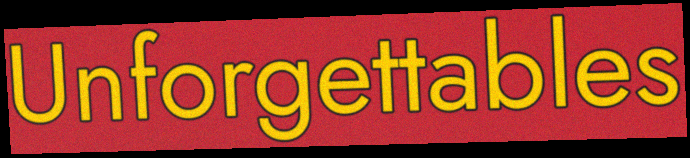
Unforgettables